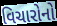
વિચારોનો